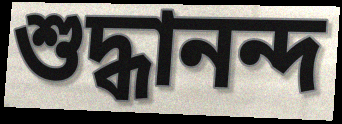
শুদ্ধানন্দ